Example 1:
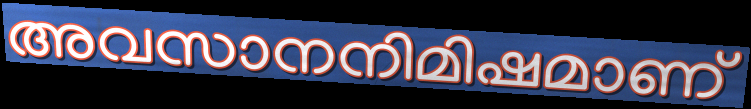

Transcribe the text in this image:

അവസാനനിമിഷമാണ്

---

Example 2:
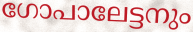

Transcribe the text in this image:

ഗോപാലേട്ടനും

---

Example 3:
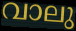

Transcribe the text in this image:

വാലു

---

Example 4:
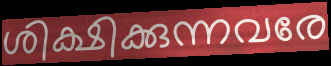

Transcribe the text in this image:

ശിക്ഷിക്കുന്നവരേ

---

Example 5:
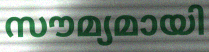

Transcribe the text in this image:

സൗമ്യമായി